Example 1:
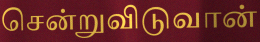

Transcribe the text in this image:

சென்றுவிடுவான்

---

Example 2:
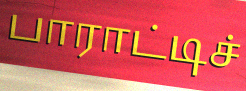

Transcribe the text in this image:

பாராட்டிச்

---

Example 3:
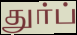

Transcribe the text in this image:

துர்ப்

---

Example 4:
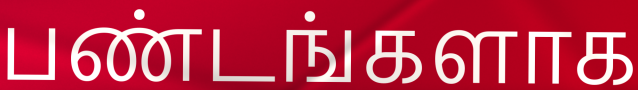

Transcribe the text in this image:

பண்டங்களாக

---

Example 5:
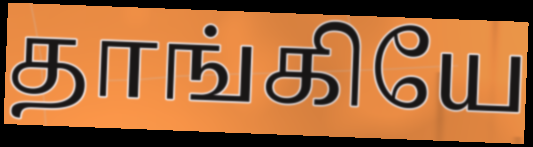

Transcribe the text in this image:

தாங்கியே